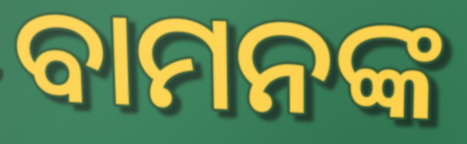
ବାମନଙ୍କ